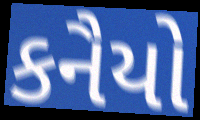
કનૈયો